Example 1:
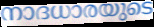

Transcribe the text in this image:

നാദധാരയുടെ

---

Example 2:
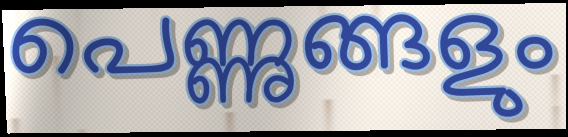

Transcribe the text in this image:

പെണ്ണുങ്ങളും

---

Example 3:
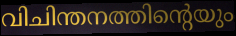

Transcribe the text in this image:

വിചിന്തനത്തിന്റെയും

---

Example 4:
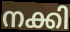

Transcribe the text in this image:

നക്കി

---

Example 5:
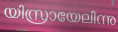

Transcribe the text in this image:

യിസ്രായേലിന്നു